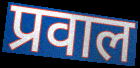
प्रवाल